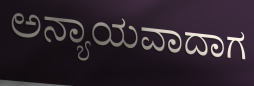
ಅನ್ಯಾಯವಾದಾಗ